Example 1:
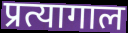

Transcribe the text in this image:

प्रत्यागाल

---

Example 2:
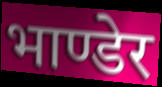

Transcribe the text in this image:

भाण्‍डेर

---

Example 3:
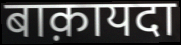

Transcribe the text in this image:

बाक़ायदा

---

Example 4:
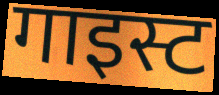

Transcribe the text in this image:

गाइस्ट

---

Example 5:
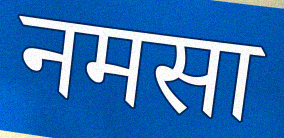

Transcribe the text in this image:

नमसा